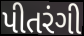
પીતરંગી